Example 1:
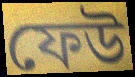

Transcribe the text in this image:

ফেউ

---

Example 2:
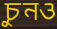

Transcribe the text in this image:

চুনও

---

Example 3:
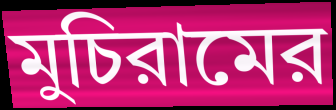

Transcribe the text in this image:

মুচিরামের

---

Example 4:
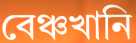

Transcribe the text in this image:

বেঞ্চখানি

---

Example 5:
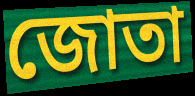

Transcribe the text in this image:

জোতা